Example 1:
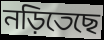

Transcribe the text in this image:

নড়িতেছে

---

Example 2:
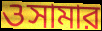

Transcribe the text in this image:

ওসামার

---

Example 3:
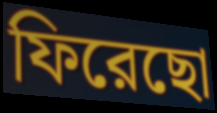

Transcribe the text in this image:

ফিরেছো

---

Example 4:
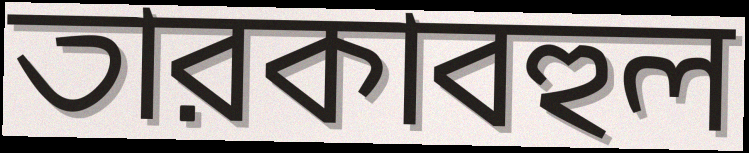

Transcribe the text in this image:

তারকাবহুল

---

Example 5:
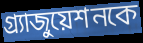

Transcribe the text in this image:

গ্র্যাজুয়েশনকে